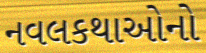
નવલકથાઓનો